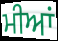
ਮੀਆਂ